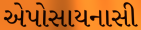
એપોસાયનાસી